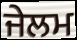
ਜੇਲਮ